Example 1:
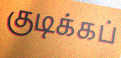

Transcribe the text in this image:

குடிக்கப்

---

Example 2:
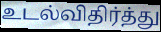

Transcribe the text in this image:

உடல்விதிர்த்து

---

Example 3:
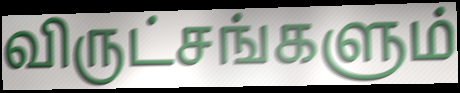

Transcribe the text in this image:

விருட்சங்களும்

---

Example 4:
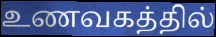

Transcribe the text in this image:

உணவகத்தில்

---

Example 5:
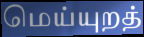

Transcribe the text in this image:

மெய்யுறத்